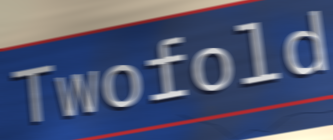
Twofold